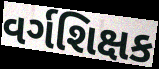
વર્ગશિક્ષક